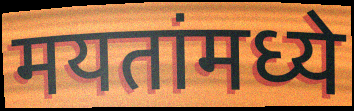
मयतांमध्ये